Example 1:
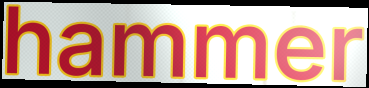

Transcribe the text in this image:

hammer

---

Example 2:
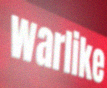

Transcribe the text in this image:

warlike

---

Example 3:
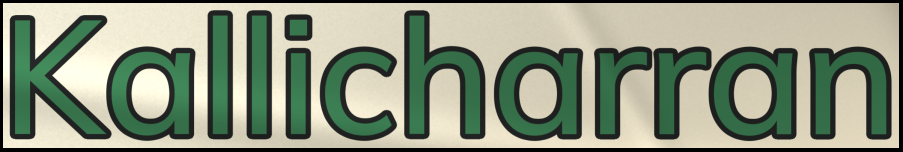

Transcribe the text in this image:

Kallicharran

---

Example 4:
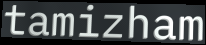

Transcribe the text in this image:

tamizham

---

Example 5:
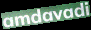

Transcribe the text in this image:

amdavadi